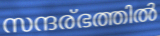
സന്ദര്ഭത്തിൽ